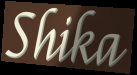
Shika